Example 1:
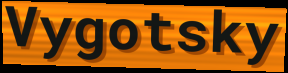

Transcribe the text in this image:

Vygotsky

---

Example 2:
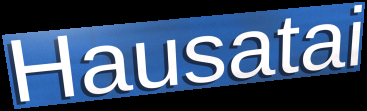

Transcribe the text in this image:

Hausatai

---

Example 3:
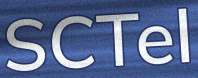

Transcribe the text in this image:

SCTel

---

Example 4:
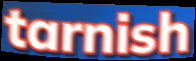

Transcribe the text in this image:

tarnish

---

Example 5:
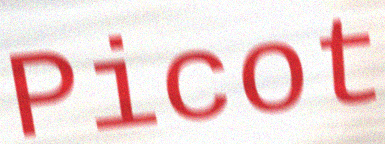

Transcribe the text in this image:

Picot